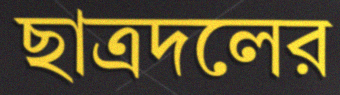
ছাত্রদলের